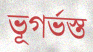
ভূগর্ভস্ত